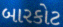
બારકોટ